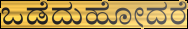
ಒಡೆದುಹೋದರೆ